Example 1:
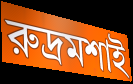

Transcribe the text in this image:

রুদ্রমশাই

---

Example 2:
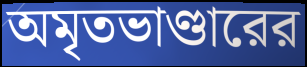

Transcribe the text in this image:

অমৃতভাণ্ডারের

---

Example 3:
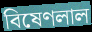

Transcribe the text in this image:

বিষেণলাল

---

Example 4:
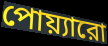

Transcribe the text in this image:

পোয়্যারো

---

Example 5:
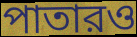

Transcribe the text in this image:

পাতারও